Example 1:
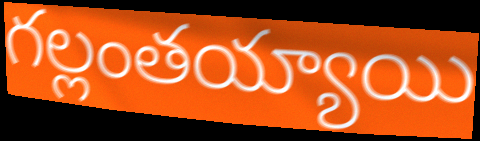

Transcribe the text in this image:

గల్లంతయ్యాయి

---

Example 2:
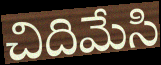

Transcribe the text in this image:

చిదిమేసి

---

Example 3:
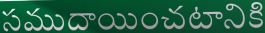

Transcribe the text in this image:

సముదాయించటానికి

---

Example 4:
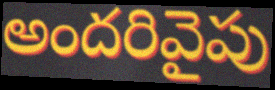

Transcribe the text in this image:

అందరివైపు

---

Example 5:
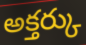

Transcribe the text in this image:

అక్తర్కు